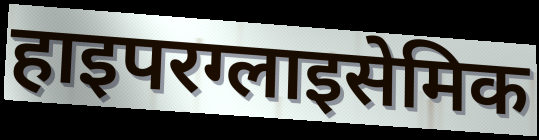
हाइपरग्लाइसेमिक